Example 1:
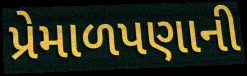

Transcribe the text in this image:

પ્રેમાળપણાની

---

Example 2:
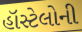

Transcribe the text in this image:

હૉસ્ટેલોની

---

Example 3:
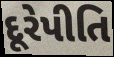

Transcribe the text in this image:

દૂરેપીતિ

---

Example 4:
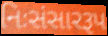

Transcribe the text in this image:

નિઃસંસારરૂપ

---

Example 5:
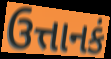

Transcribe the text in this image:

ઉત્તાનકં